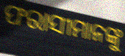
ଫରାସୀମାନଙ୍କୁ